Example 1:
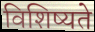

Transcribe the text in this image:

विशिष्यते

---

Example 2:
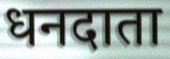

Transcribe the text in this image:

धनदाता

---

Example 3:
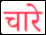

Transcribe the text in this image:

चारे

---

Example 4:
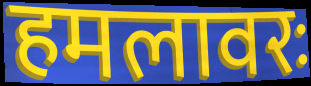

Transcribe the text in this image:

हमलावरः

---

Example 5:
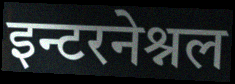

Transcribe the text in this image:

इन्टरनेश्नल